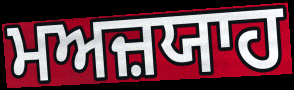
ਮਅਜ਼ਯਾਹ